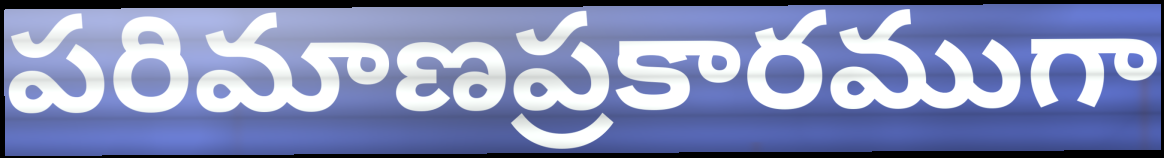
పరిమాణప్రకారముగా